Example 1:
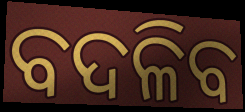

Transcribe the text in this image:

ବଦଳିବ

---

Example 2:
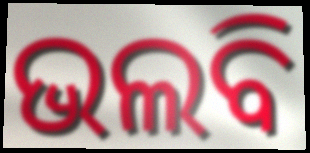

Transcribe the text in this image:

ଭଲବି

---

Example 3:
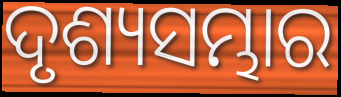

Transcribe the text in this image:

ଦୃଶ୍ୟସମ୍ଭାର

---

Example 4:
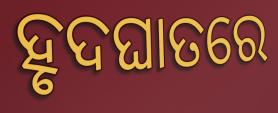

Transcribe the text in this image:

ହୃଦଘାତରେ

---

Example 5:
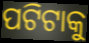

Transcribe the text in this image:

ପଟିଟାକୁ